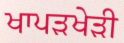
ਖਾਪੜਖੇੜੀ